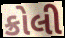
ક્રોલી